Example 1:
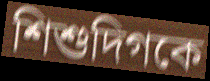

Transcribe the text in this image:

শিশুদিগকে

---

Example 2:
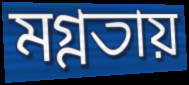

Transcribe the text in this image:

মগ্নতায়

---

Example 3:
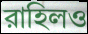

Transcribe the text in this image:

রাহিলও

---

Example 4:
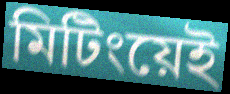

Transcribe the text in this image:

মিটিংয়েই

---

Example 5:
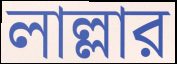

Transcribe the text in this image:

লাল্লার